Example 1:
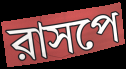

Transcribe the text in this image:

রাসপে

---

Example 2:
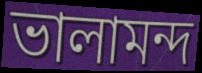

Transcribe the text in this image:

ভালামন্দ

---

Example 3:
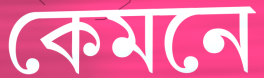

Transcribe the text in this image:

কেমনে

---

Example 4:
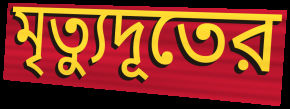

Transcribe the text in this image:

মৃত্যুদূতের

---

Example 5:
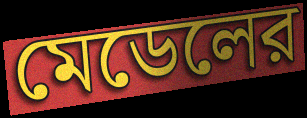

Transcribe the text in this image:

মেডেলের